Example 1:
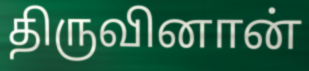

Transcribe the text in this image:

திருவினான்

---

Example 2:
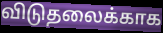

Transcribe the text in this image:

விடுதலைக்காக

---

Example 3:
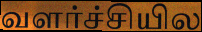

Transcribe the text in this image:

வளர்ச்சியில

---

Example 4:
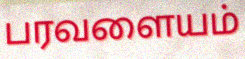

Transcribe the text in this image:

பரவளையம்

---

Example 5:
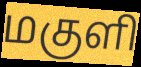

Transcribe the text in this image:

மகுளி